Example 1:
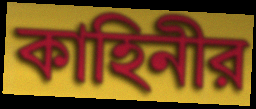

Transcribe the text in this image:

কাহিনীর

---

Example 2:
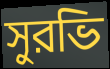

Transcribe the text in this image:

সুরভি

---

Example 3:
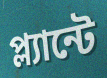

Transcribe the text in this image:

প্ল্যান্টে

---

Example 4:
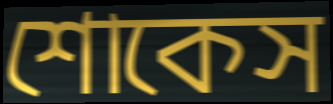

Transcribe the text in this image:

শোকেস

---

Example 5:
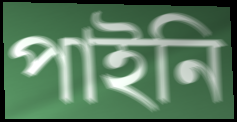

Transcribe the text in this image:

পাইনি